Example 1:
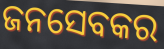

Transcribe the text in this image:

ଜନସେବକର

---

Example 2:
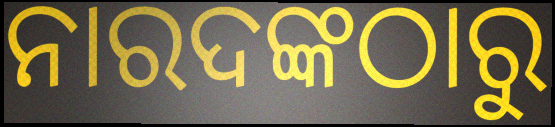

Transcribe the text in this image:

ନାରଦଙ୍କଠାରୁ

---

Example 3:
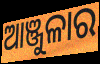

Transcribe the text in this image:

ଆଞ୍ଜୁଳାର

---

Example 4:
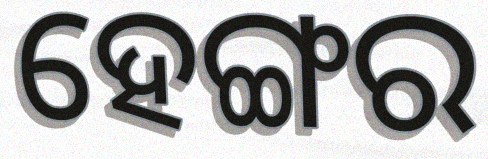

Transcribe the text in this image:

ହେଙ୍ଗର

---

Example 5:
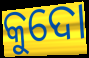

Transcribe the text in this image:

କୁଦୋ